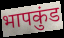
भापकुंड